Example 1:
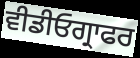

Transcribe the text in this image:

ਵੀਡੀਓਗ੍ਰਾਫਰ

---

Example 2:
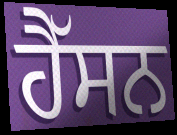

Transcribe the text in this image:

ਹੈੱਸਨ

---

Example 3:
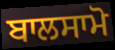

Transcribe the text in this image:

ਬਾਲਸਾਮੋ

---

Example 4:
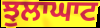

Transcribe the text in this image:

ਝੁਲਾਘਾਟ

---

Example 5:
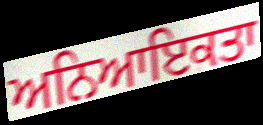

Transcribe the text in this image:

ਅਨਿਆਇਕਤਾ